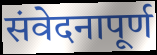
संवेदनापूर्ण